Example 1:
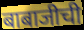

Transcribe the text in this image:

बाबाजीची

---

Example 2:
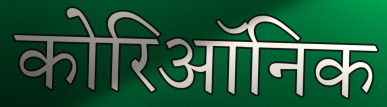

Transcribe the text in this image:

कोरिऑनिक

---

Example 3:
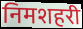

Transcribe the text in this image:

निमशहरी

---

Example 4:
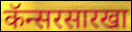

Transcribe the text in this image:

कॅन्सरसारखा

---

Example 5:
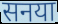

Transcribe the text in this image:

सनया